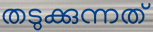
തടുക്കുന്നത്